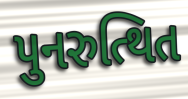
પુનરુત્થિત